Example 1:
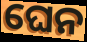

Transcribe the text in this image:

ଘେନ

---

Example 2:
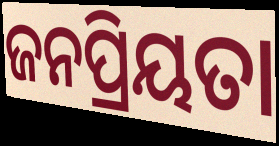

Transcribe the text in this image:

ଜନପ୍ରିୟତା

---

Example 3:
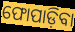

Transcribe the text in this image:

ଫୋପାଡ଼ିବା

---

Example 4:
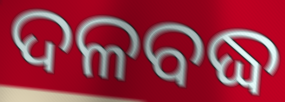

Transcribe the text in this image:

ଦଳବଦ୍ଧ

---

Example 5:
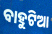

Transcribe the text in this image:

ବାହୁଟିଆ